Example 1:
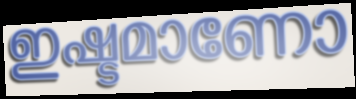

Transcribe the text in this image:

ഇഷ്ടമാണോ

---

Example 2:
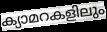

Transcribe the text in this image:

ക്യാമറകളിലും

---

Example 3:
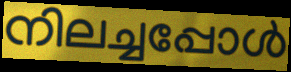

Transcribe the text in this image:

നിലച്ചപ്പോൾ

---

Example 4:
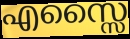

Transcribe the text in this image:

എസ്സൈ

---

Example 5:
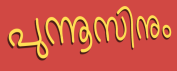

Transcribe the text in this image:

പുന്നൂസിനും